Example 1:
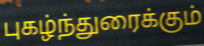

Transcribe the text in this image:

புகழ்ந்துரைக்கும்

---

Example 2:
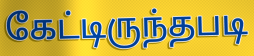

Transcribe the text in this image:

கேட்டிருந்தபடி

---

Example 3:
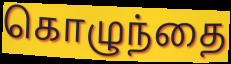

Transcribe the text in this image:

கொழுந்தை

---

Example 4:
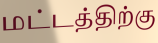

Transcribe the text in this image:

மட்டத்திற்கு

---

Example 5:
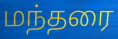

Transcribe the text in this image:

மந்தரை